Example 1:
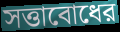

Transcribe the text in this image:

সত্তাবোধের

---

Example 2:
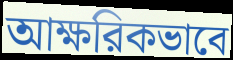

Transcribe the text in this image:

আক্ষরিকভাবে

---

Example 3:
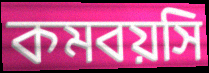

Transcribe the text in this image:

কমবয়সি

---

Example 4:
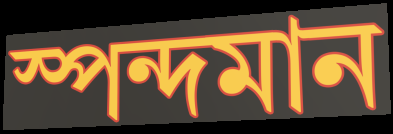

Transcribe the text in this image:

স্পন্দমান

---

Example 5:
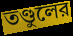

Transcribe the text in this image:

তণ্ডুলের